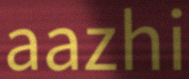
aazhi